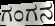
ಗಂಗನ